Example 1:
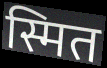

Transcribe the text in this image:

स्मित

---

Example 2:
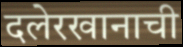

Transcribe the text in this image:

दलेरखानाची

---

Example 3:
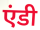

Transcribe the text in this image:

एंडी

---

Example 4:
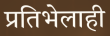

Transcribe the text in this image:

प्रतिभेलाही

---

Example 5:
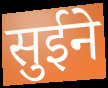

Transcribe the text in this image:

सुईने